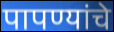
पापण्यांचे